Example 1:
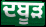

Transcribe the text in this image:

ਦਬੂੜ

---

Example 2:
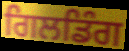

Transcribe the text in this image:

ਗਿਲਡਿੰਗ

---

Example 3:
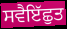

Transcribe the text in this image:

ਸਵੈਇੱਛੁਤ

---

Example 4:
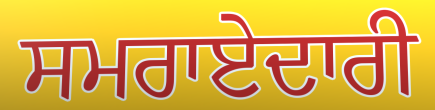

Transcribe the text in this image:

ਸਮਰਾਏਦਾਰੀ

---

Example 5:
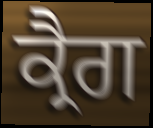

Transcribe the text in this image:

ਕ੍ਰੈਗ